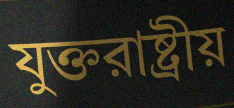
যুক্তরাষ্ট্রীয়